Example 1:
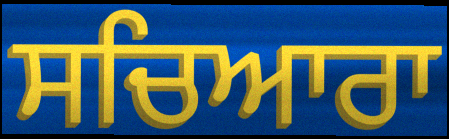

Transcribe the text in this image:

ਸਚਿਆਰਾ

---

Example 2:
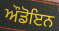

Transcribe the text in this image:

ਔਡੋਇਨ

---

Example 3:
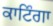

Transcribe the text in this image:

ਕਾਟਿੰਗਾ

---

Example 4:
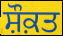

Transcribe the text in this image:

ਸ਼ੌਕ਼ਤ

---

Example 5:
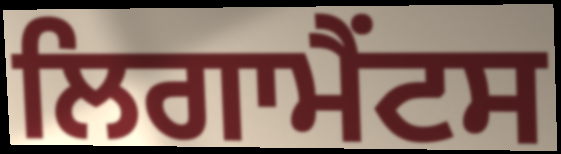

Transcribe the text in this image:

ਲਿਗਾਮੈਂਟਸ